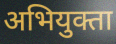
अभियुक्ता